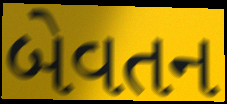
બેવતન